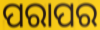
ପରାପର